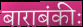
बाराबंकीः